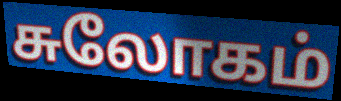
சுலோகம்